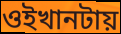
ওইখানটায়